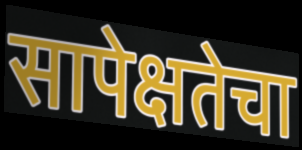
सापेक्षतेचा